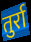
तुर्रा